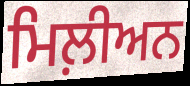
ਮਿਲ਼ੀਅਨ